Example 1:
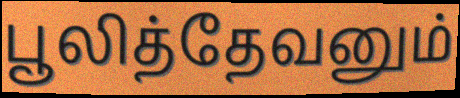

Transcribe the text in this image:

பூலித்தேவனும்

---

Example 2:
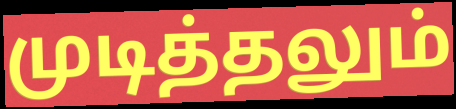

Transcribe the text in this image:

முடித்தலும்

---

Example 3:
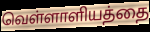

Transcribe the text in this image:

வெள்ளாளியத்தை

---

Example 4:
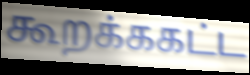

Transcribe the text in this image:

கூறக்ககட்ட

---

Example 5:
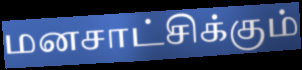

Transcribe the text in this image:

மனசாட்சிக்கும்